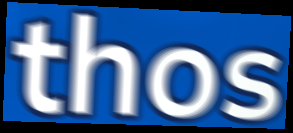
thos